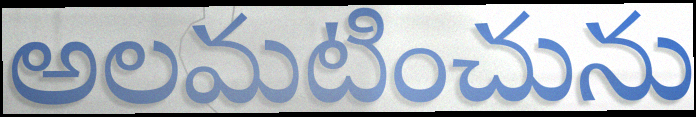
అలమటించును